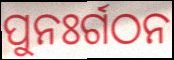
ପୁନଃର୍ଗଠନ